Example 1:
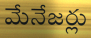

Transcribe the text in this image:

మేనేజర్లు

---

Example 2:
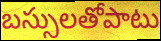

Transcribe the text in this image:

బస్సులతోపాటు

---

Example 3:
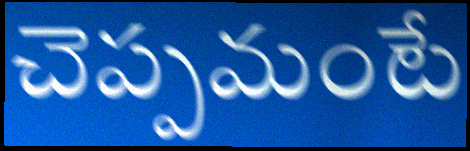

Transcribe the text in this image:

చెప్పమంటే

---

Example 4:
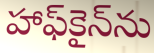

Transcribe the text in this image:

హాఫ్‌కైన్‌ను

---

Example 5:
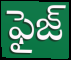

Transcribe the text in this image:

ఫైజ్